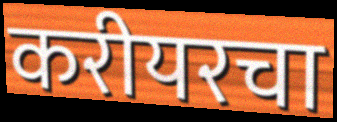
करीयरचा